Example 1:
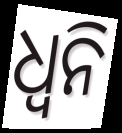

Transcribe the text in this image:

ଧ୍ୱନି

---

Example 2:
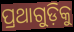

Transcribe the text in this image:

ପ୍ରଥାଗୁଡ଼ିକୁ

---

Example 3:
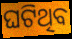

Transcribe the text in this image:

ଘଟିଥିବ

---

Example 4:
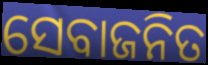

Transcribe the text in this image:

ସେବାଜନିତ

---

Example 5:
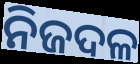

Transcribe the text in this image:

ନିଜଦଳ